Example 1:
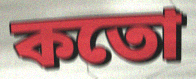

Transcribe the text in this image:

কতো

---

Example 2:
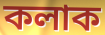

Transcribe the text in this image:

কলাক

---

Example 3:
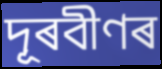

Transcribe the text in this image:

দূৰবীণৰ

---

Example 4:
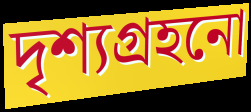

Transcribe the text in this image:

দৃশ্যগ্ৰহনো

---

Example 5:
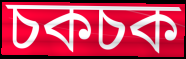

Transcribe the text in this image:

চকচক